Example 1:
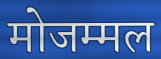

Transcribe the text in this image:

मोजम्मल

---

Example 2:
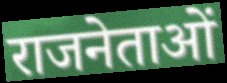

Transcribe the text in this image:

राजनेताओं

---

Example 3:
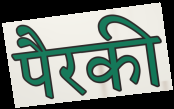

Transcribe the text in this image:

पैरकी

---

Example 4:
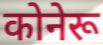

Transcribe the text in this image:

कोनेरू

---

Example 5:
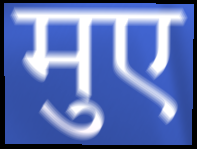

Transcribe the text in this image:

मुए